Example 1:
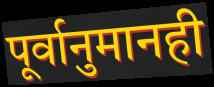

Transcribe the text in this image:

पूर्वानुमानही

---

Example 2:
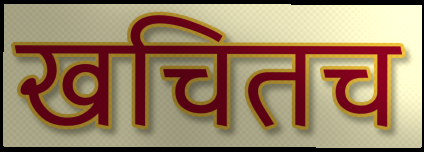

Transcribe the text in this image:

खचितच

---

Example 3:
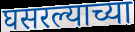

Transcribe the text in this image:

घसरल्याच्या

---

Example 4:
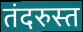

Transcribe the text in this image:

तंदरुस्त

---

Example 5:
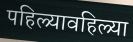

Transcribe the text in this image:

पहिल्यावहिल्या